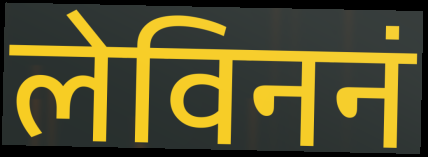
लेविननं